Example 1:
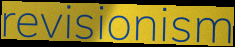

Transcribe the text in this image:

revisionism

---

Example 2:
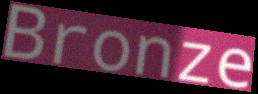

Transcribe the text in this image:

Bronze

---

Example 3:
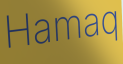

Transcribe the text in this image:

Hamaq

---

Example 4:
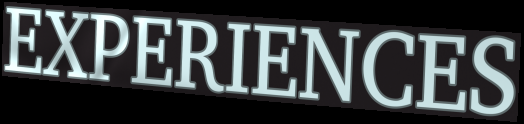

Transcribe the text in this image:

EXPERIENCES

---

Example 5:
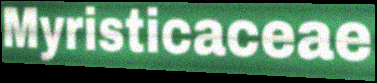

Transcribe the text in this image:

Myristicaceae